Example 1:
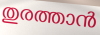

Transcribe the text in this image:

തുരത്താൻ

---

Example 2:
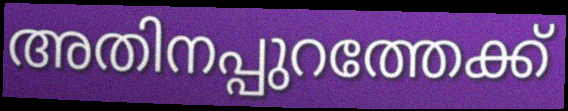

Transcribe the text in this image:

അതിനപ്പുറത്തേക്ക്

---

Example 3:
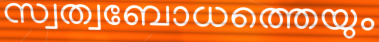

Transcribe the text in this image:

സ്വത്വബോധത്തെയും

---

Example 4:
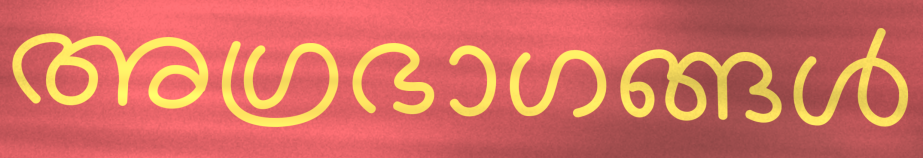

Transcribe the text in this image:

അഗ്രഭാഗങ്ങൾ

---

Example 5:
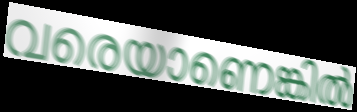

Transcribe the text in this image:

വരെയാണെങ്കിൽ